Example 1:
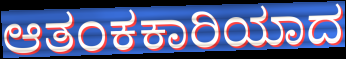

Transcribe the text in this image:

ಆತಂಕಕಾರಿಯಾದ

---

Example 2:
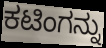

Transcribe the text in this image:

ಕಟಿಂಗನ್ನು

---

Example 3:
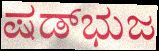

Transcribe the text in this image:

ಷಡ್‌ಭುಜ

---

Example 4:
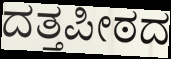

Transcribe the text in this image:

ದತ್ತಪೀಠದ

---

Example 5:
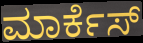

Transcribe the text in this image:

ಮಾರ್ಕೆಸ್